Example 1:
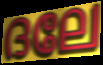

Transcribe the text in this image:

ദലേ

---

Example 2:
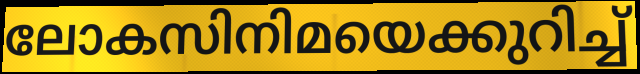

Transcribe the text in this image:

ലോകസിനിമയെക്കുറിച്ച്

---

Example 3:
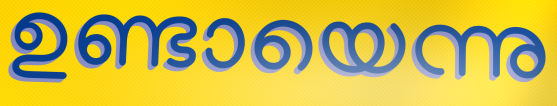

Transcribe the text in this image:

ഉണ്ടായെന്നു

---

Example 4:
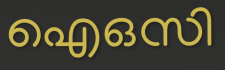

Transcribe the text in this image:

ഐഒസി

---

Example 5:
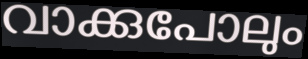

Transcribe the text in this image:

വാക്കുപോലും